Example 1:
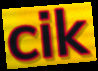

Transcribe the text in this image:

cik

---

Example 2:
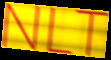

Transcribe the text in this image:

NLT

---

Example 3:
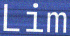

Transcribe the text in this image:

Lim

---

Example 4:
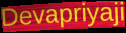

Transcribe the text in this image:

Devapriyaji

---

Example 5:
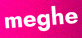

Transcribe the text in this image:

meghe